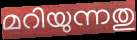
മറിയുന്നതു